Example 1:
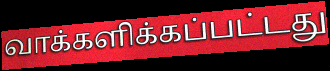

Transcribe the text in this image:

வாக்களிக்கப்பட்டது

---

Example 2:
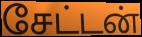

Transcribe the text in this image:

சேட்டன்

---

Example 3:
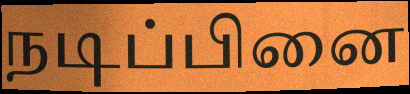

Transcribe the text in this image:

நடிப்பினை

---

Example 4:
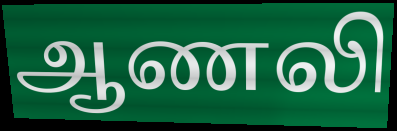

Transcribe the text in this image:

ஆணலி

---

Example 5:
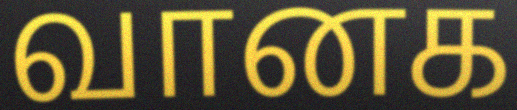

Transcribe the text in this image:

வானக